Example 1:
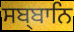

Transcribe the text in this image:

ਸਬ੍ਬਾਨਿ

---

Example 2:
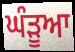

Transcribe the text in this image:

ਘੰੜੂਆ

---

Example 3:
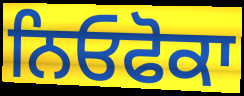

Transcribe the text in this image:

ਨਿਓਫੋਕਾ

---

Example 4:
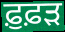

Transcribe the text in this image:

ਫ਼ੁਫ਼ੜ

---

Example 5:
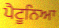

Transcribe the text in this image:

ਪੈਟੂਨਿਆ